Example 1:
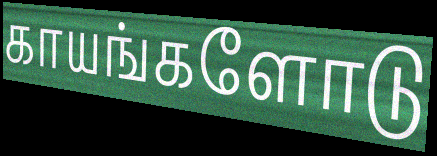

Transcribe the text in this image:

காயங்களோடு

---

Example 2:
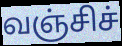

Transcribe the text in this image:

வஞ்சிச்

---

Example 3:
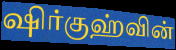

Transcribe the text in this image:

ஷிர்குஹ்வின்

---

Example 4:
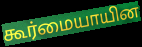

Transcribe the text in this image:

கூர்மையாயின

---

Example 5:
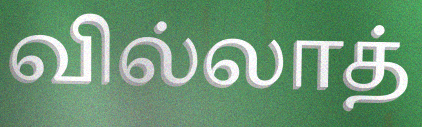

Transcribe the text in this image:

வில்லாத்